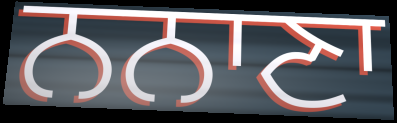
ਨਨਾਣਾ